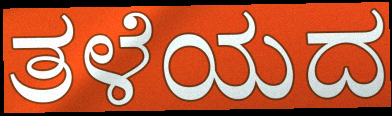
ತಳೆಯದ